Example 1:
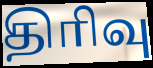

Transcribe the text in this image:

திரிவு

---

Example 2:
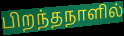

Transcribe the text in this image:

பிறந்தநாளில்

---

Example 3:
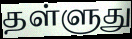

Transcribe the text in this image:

தள்ளுது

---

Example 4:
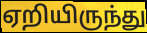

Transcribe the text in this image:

ஏறியிருந்து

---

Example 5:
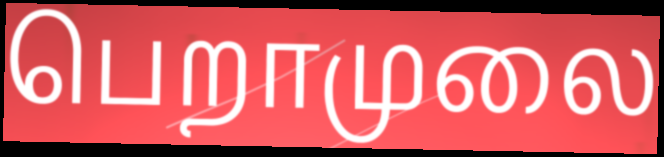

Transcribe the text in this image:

பெறாமுலை